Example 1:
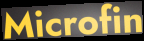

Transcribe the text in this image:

Microfin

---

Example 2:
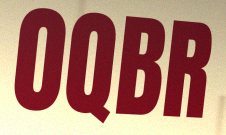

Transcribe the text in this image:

OQBR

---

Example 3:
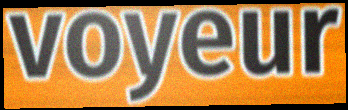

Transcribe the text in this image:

voyeur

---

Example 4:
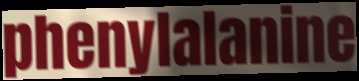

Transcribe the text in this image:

phenylalanine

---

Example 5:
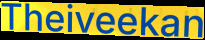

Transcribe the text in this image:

Theiveekan